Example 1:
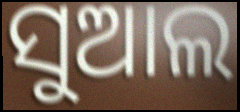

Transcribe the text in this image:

ସୁଆଲ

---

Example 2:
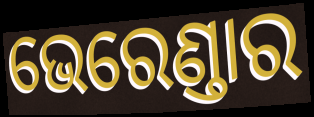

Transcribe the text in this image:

ଭେରେଣ୍ଡାର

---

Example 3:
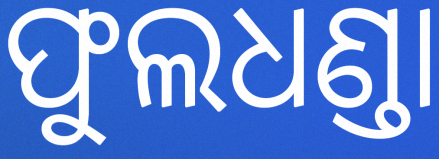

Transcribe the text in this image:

ଫୁଲଧଣ୍ଡା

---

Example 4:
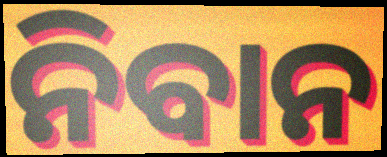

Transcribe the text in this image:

ନିବାନ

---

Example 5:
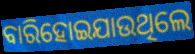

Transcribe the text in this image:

ବାରିହୋଇଯାଉଥିଲେ